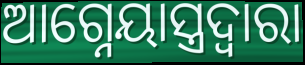
ଆଗ୍ନେୟାସ୍ତ୍ରଦ୍ୱାରା